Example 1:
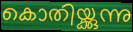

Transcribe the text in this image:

കൊതിയ്ക്കുന്നു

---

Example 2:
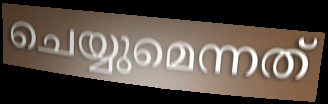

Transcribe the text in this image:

ചെയ്യുമെന്നത്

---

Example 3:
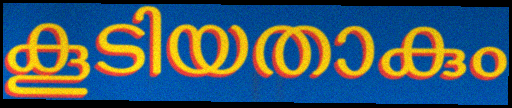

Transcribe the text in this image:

കൂടിയതാകും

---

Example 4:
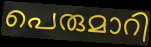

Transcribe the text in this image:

പെരുമാറി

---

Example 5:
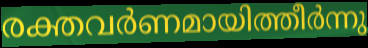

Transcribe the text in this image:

രക്തവർണമായിത്തീർന്നു